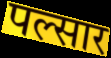
पल्सार